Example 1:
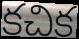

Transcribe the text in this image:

కచిక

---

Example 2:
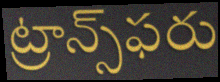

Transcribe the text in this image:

ట్రాన్స్‌ఫరు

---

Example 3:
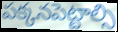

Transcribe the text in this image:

పక్కనపెట్టాల్సి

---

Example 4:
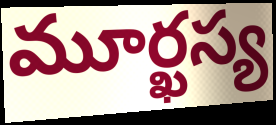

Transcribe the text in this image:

మూర్ఖస్య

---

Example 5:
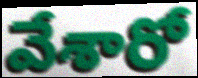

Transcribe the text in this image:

వేశారో